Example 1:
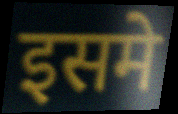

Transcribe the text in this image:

इसमे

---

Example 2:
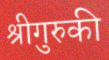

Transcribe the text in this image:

श्रीगुरुकी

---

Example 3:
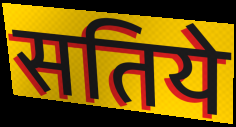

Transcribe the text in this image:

सतिये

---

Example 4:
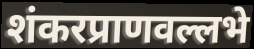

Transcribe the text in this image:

शंकरप्राणवल्लभे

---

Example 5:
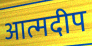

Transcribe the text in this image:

आत्मदीप